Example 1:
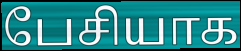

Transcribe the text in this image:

பேசியாக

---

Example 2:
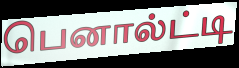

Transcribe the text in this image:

பெனால்ட்டி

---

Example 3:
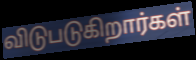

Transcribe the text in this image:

விடுபடுகிறார்கள்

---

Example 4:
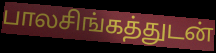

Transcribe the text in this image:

பாலசிங்கத்துடன்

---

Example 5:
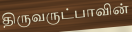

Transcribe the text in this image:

திருவருட்பாவின்